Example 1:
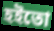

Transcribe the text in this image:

হইতো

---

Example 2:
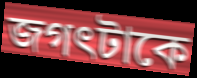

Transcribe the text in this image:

জগৎটাকে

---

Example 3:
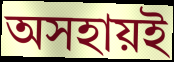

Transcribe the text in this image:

অসহায়ই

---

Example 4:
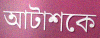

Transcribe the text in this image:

আটাশকে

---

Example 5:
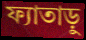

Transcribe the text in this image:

ফ্যাতাড়ু